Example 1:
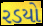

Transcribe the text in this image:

રડયો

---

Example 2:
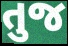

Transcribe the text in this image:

તુજ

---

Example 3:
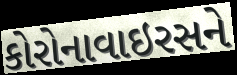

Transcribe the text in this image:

કોરોનાવાઇરસને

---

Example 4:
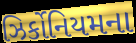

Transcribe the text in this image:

ઝિર્કોનિયમના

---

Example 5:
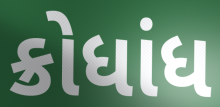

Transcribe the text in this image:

ક્રોધાંધ